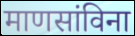
माणसांविना